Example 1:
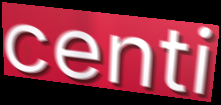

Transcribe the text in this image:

centi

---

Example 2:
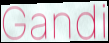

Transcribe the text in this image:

Gandi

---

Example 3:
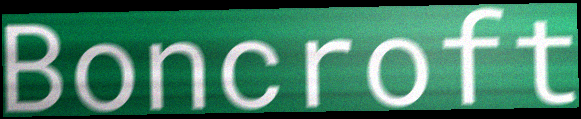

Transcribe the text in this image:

Boncroft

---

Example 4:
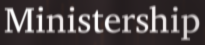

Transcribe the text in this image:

Ministership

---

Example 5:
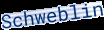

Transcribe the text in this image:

Schweblin